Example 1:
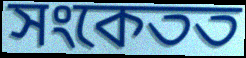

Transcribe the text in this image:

সংকেতত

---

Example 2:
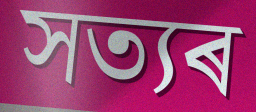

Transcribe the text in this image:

সত্যৰ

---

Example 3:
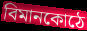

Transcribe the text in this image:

বিমানকোঠে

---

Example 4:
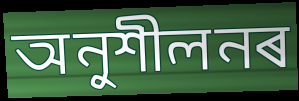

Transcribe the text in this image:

অনুশীলনৰ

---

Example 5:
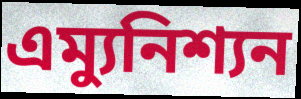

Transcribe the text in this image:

এম্যুনিশ্যন